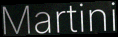
Martini